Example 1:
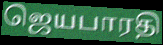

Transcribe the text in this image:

ஜெயபாரதி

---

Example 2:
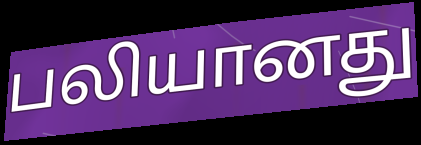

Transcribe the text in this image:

பலியானது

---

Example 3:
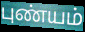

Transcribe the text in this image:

புண்யம்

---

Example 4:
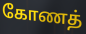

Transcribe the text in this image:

கோணத்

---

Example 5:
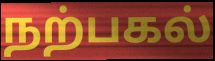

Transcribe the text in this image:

நற்பகல்